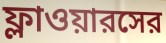
ফ্লাওয়ারসের